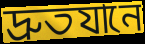
দ্রুতযানে